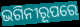
ଭଗିନୀରୂପରେ